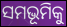
ସମଭୂମିକୁ